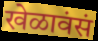
खेळावंसं